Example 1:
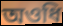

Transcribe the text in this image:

অওধি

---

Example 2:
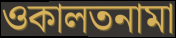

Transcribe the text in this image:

ওকালতনামা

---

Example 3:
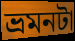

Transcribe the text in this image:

ভ্রমনটা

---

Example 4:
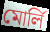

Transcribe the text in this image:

মোর্লি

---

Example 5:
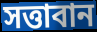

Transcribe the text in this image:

সত্তাবান